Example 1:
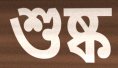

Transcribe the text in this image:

শুষ্ক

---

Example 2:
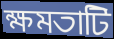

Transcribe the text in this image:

ক্ষমতাটি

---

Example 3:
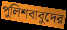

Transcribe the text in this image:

পুলিশবাবুদের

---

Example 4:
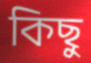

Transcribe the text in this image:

কিছু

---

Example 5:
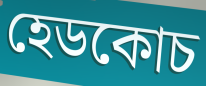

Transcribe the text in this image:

হেডকোচ